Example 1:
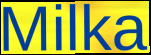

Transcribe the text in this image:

Milka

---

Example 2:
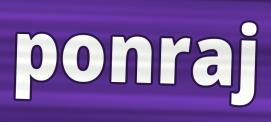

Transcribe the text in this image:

ponraj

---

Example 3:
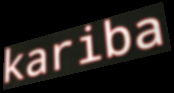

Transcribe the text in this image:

kariba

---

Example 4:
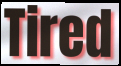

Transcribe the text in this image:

Tired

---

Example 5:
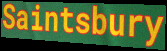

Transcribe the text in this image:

Saintsbury